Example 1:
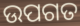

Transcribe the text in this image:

ଉପଗତ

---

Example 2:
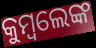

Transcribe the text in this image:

କୁମ୍ବଲେଙ୍କ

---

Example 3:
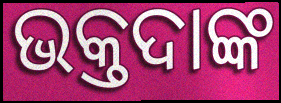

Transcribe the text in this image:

ଭକ୍ତଦାଙ୍କ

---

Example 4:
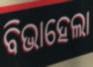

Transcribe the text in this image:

ବିଭାହେଲା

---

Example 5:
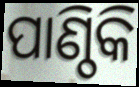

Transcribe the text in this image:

ପାଣ୍ଠିକି